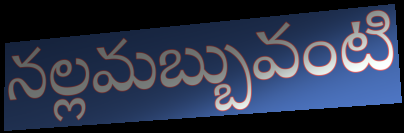
నల్లమబ్బువంటి